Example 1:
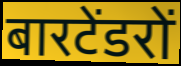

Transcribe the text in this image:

बारटेंडरों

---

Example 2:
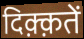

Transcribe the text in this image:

दिक़्क़तें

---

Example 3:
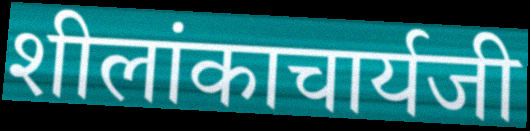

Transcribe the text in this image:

शीलांकाचार्यजी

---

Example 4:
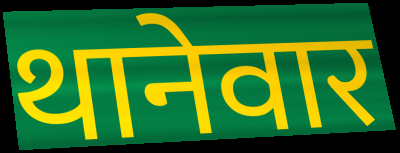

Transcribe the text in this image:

थानेवार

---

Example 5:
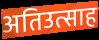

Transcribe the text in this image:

अतिउत्साह